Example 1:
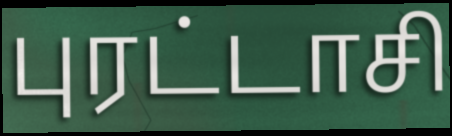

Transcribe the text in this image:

புரட்டாசி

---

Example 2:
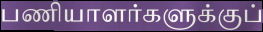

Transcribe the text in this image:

பணியாளர்களுக்குப்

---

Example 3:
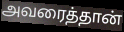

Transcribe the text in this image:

அவரைத்தான்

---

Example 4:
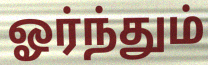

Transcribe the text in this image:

ஓர்ந்தும்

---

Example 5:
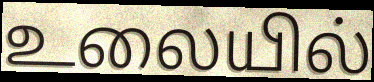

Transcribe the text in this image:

உலையில்